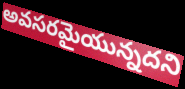
అవసరమైయున్నదని